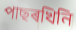
পাছৰখিনি